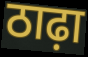
ठाढ़ा